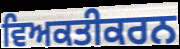
ਵਿਅਕਤੀਕਰਨ